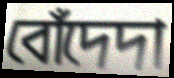
বোঁদেদা